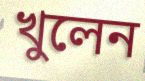
খুলেন